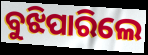
ବୁଝିପାରିଲେ